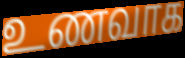
உணவாக